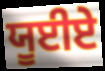
ਯੂਈਏ